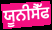
ਯੂਨੀਸੈੱਫ